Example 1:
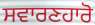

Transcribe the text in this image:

ਸਵਾਰਣਹਾਰੋ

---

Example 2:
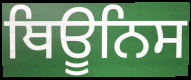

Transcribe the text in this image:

ਥਿਊਨਿਸ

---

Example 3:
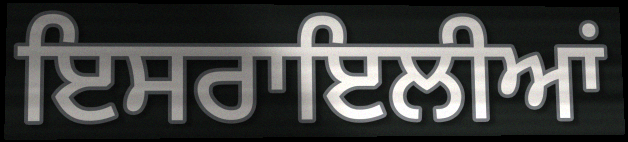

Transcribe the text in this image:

ਇਸਰਾਇਲੀਆਂ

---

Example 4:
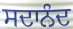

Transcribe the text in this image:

ਸਦਾਨੰਦ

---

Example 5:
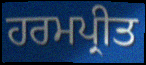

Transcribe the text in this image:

ਹਰਮਪ੍ਰੀਤ